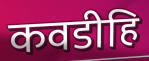
कवडीहि